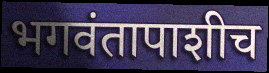
भगवंतापाशीच